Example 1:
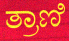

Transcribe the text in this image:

ತ್ರಾಣಿ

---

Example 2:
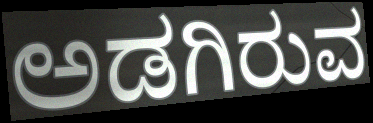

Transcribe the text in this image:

ಅಡಗಿರುವ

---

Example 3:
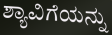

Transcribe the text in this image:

ಶ್ಯಾವಿಗೆಯನ್ನು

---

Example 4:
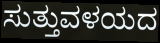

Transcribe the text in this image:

ಸುತ್ತುವಳಯದ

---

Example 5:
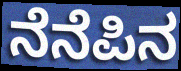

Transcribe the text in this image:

ನೆನೆಪಿನ